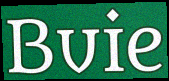
Buie